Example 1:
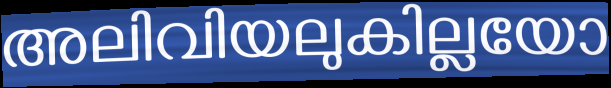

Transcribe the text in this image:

അലിവിയലുകില്ലയോ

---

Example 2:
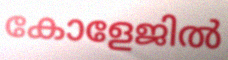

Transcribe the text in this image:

കോളേജിൽ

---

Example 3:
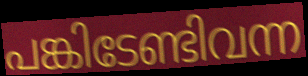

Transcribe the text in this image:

പങ്കിടേണ്ടിവന്ന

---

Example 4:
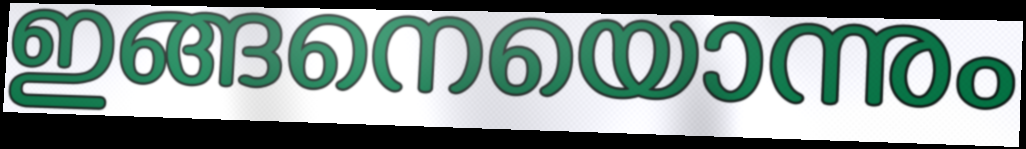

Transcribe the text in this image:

ഇങ്ങനെയൊന്നും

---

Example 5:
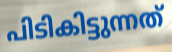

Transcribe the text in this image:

പിടികിട്ടുന്നത്